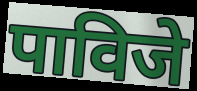
पाविजे